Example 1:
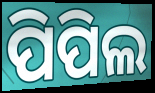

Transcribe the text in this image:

ପିପିଲ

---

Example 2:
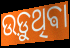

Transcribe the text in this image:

ଉଡ଼ୁଥିଵା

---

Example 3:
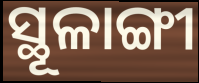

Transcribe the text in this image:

ସ୍ଥୂଳାଙ୍ଗୀ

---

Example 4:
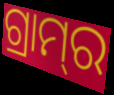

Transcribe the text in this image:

ଗ୍ରାମ୍‌ର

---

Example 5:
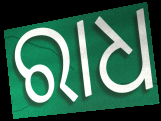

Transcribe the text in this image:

ରାଧ